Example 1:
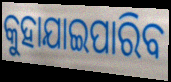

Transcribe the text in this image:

କୁହାଯାଇପାରିବ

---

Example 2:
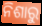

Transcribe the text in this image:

ନିଶାରୁ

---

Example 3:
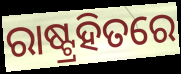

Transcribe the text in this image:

ରାଷ୍ଟ୍ରହିତରେ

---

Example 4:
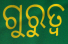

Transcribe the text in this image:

ଗୁରୁତ୍ବ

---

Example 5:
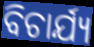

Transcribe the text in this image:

ବିଚାର୍ଯ୍ୟ